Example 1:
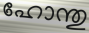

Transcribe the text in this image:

ഹോന്തു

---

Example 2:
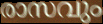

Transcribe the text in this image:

രാസവും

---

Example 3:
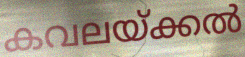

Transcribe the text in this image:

കവലയ്ക്കൽ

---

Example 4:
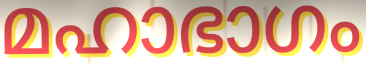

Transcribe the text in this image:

മഹാഭാഗം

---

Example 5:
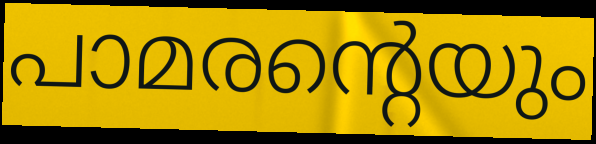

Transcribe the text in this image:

പാമരന്റെയും